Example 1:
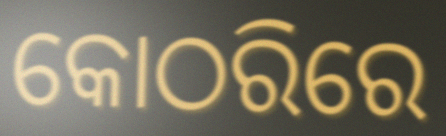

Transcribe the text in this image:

କୋଠରିରେ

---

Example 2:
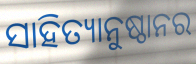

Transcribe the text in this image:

ସାହିତ୍ୟାନୁଷ୍ଠାନର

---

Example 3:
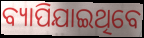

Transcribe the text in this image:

ବ୍ୟାପିଯାଇଥିବେ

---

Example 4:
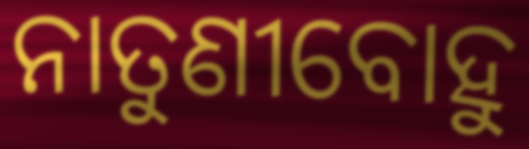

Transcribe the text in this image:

ନାତୁଣୀବୋହୁ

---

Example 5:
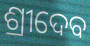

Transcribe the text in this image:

ଶ୍ରୀଦେବ